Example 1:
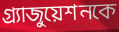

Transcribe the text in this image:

গ্র্যাজুয়েশনকে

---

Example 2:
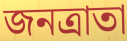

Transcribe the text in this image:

জনত্রাতা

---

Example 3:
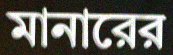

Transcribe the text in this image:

মানারের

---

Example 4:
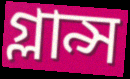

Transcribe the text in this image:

গ্লান্স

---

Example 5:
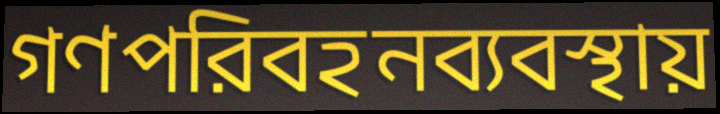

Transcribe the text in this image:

গণপরিবহনব্যবস্থায়